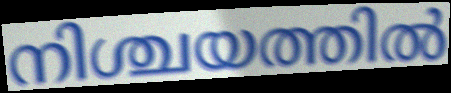
നിശ്ചയത്തിൽ